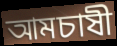
আমচাষী